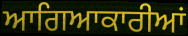
ਆਗਿਆਕਾਰੀਆਂ